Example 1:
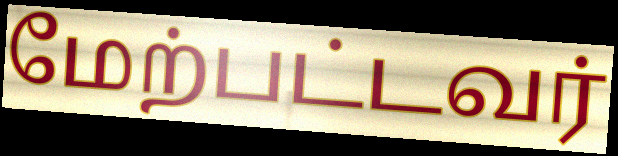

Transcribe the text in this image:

மேற்பட்டவர்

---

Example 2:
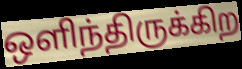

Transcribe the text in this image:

ஒளிந்திருக்கிற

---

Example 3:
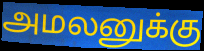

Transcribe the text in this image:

அமலனுக்கு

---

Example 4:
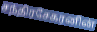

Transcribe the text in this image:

சந்திரசேகரனின்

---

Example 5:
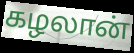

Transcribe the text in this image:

கழலான்